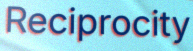
Reciprocity